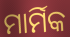
ମାର୍ମିକ